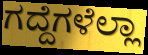
ಗದ್ದೆಗಳೆಲ್ಲಾ